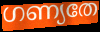
ഗണ്യതേ